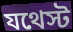
যথেস্ট